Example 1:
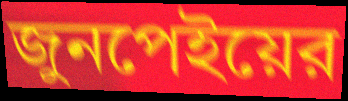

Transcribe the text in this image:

জুনপেইয়ের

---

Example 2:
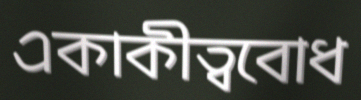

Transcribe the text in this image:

একাকীত্ববোধ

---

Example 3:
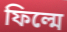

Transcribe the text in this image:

ফিল্মে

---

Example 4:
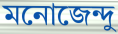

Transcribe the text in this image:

মনোজেন্দু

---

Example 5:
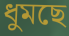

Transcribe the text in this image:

ধুমছে